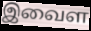
இவைள